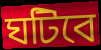
ঘটিবে